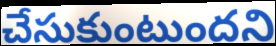
చేసుకుంటుందని